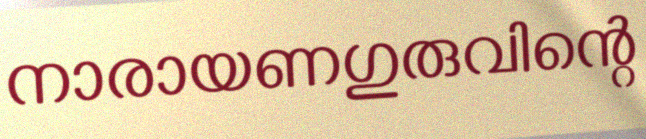
നാരായണഗുരുവിന്റെ